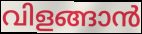
വിളങ്ങാൻ